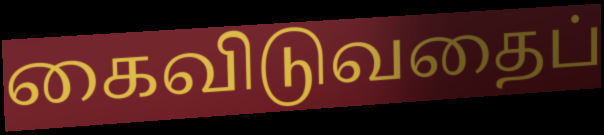
கைவிடுவதைப்